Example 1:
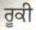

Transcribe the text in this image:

ਰੂਕੀ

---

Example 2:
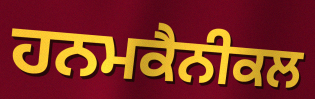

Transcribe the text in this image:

ਹਨਮਕੈਨੀਕਲ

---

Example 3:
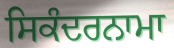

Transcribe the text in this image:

ਸਿਕੰਦਰਨਾਮਾ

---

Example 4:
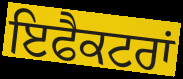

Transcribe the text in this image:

ਇਫੈਕਟਰਾਂ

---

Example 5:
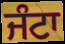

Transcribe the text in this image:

ਜੰਟਾ